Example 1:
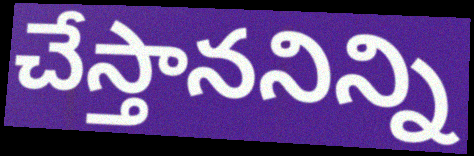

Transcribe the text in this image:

చేస్తాననిన్ని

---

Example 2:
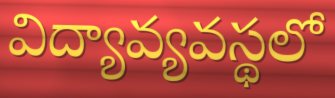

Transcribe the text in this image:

విద్యావ్యవస్థలో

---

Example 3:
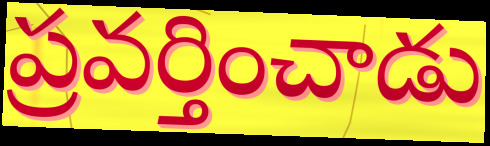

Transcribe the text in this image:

ప్రవర్తించాడు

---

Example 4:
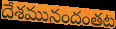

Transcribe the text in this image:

దేశమునందంతట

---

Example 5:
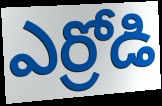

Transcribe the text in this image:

ఎర్రోడి